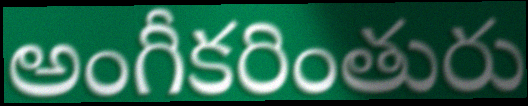
అంగీకరింతురు